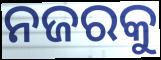
ନଜରକୁ